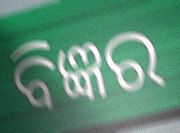
ବିଜ୍ଞର